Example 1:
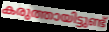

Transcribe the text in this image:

കരുത്തായിട്ടുണ്ട്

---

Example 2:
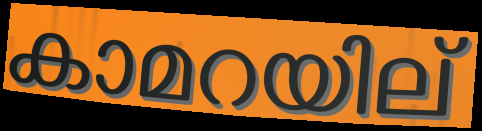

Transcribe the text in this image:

കാമറയില്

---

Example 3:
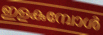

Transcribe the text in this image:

ഇളകുമ്പോൾ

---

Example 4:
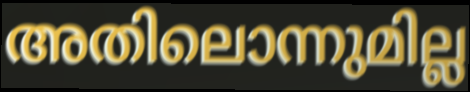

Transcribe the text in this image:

അതിലൊന്നുമില്ല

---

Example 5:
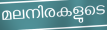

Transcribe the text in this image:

മലനിരകളുടെ